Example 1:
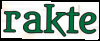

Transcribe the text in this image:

rakte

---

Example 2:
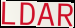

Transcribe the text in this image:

LDAR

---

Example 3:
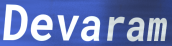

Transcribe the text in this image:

Devaram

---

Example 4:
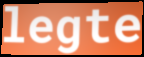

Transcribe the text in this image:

legte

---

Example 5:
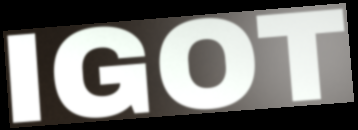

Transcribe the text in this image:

IGOT